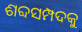
ଶବ୍ଦସମ୍ପଦକୁ